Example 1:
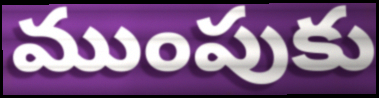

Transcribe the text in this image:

ముంపుకు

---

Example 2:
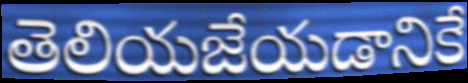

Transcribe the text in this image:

తెలియజేయడానికే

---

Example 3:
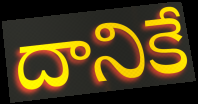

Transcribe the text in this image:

దానికే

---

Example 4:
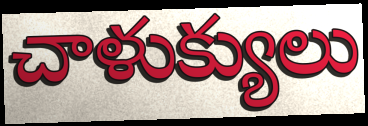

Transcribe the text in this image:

చాళుక్యులు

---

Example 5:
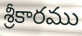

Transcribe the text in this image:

శ్రీకారము